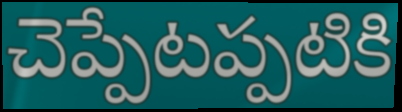
చెప్పేటప్పటికి